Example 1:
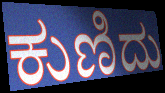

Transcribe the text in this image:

ಕುಣಿದು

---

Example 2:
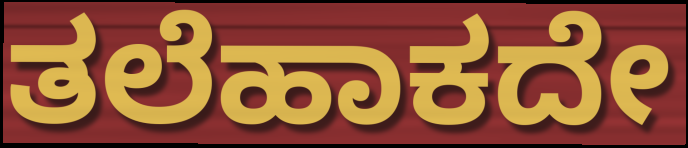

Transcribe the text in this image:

ತಲೆಹಾಕದೇ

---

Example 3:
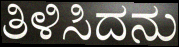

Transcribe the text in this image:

ತಿಳಿಸಿದನು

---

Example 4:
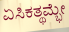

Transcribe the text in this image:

ಏಸಿಕತ್ಥಮ್ಭೇ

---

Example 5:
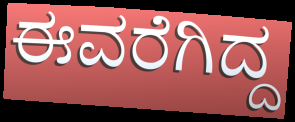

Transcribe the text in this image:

ಈವರೆಗಿದ್ದ